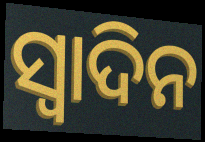
ସ୍ବାଦିନ